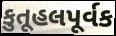
કુતૂહલપૂર્વક